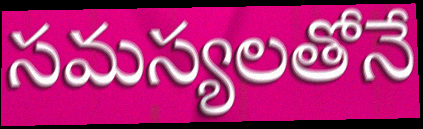
సమస్యలతోనే